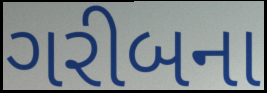
ગરીબના